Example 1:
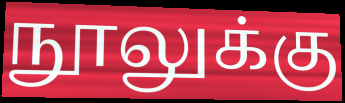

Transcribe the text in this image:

நூலுக்கு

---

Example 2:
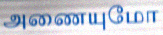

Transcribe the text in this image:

அணையுமோ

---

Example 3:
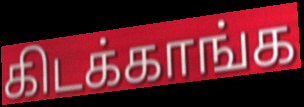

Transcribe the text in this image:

கிடக்காங்க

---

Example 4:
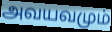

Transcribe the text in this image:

அவயவமும்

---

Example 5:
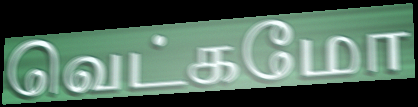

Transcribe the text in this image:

வெட்கமோ